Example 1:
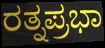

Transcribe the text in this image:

ರತ್ನಪ್ರಭಾ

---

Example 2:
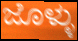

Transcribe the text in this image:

ಜೊಳ್ಳು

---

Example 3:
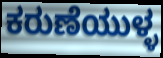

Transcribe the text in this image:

ಕರುಣೆಯುಳ್ಳ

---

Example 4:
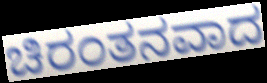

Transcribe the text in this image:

ಚಿರಂತನವಾದ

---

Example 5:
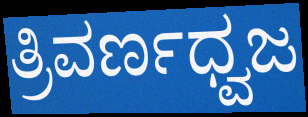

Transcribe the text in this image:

ತ್ರಿವರ್ಣಧ್ವಜ